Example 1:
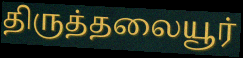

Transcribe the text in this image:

திருத்தலையூர்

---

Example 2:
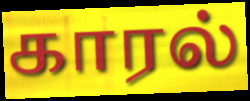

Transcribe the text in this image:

காரல்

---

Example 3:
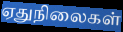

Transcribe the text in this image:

ஏதுநிலைகள்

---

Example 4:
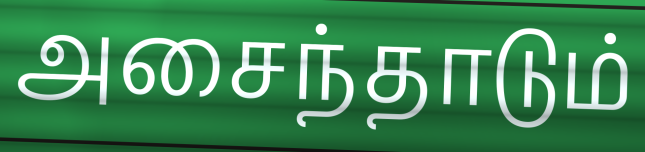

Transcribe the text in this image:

அசைந்தாடும்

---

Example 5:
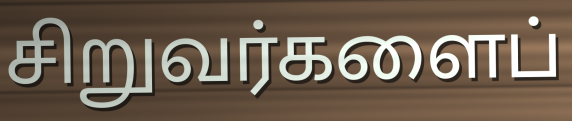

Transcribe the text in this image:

சிறுவர்களைப்